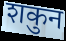
शकुन